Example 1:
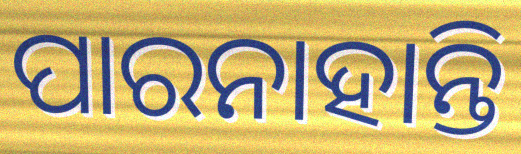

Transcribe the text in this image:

ପାରନାହାନ୍ତି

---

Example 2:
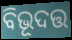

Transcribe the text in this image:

ବିଭୂଦତ୍ତ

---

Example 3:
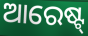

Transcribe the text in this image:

ଆରେଷ୍ଟ୍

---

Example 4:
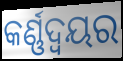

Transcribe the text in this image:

କର୍ଣ୍ଣଦ୍ୱୟର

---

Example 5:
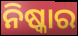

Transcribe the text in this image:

ନିଷ୍କାର